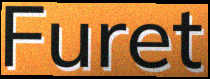
Furet